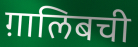
ग़ालिबची